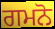
ਗਮਨੋ